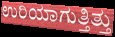
ಉರಿಯಾಗುತ್ತಿತ್ತು